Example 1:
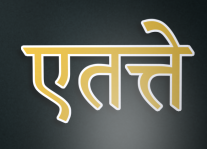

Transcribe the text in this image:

एतत्ते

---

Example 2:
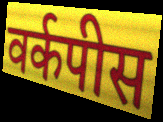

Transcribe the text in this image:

वर्कपीस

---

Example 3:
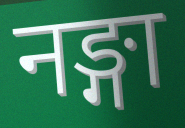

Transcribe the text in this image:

नङ्गा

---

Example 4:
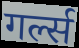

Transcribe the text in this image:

गर्ल्स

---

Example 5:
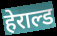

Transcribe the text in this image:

हेराल्ड